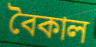
বৈকাল